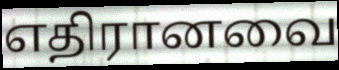
எதிரானவை